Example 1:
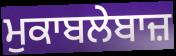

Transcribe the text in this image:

ਮੁਕਾਬਲੇਬਾਜ਼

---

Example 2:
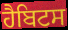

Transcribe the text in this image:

ਹੈਬਿਟਸ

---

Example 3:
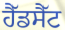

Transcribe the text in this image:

ਹੈੱਡਸੈੱਟ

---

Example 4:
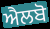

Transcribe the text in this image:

ਐਲਬੋ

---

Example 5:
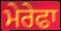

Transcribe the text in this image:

ਮੇਰੇਫਾ